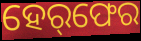
ହେର୍‌ଫେର